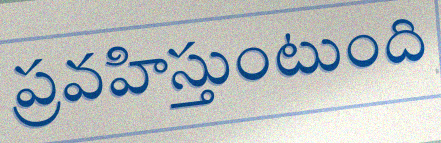
ప్రవహిస్తుంటుంది